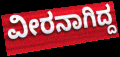
ವೀರನಾಗಿದ್ದ